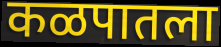
कळपातला